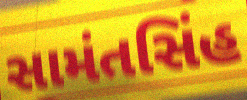
સામંતસિંહ